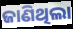
ଜାଣିଥିଲା